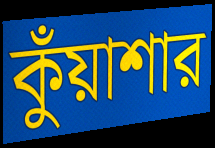
কুঁয়াশার